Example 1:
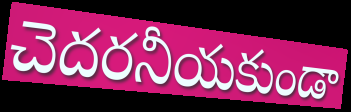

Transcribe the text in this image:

చెదరనీయకుండా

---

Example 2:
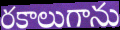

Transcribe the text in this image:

రకాలుగాను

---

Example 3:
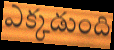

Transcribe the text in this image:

ఎక్కడుంది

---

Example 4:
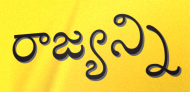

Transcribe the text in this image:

రాజ్యన్ని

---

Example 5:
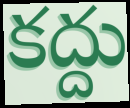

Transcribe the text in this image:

కద్దు